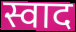
स्‍वाद